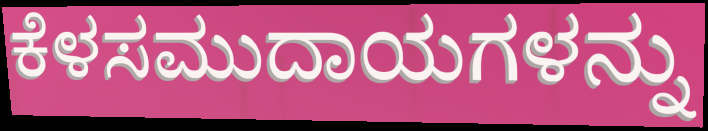
ಕೆಳಸಮುದಾಯಗಳನ್ನು